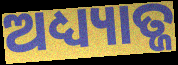
ଅଧ୍ୟ୍ୟାତ୍ଜ